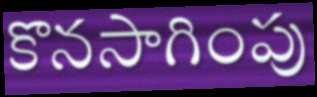
కొనసాగింపు